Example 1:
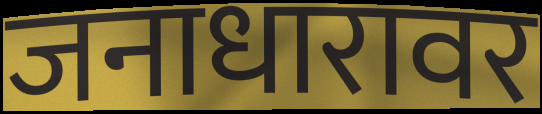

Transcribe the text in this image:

जनाधारावर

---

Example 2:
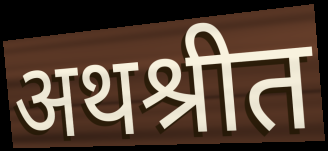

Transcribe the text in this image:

अथश्रीत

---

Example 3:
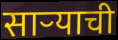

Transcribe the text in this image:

साऱ्याची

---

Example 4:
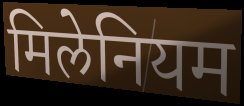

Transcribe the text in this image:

मिलेनियम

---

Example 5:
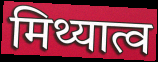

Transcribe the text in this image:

मिथ्यात्व